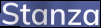
Stanza